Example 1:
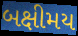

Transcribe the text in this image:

બક્ષીમય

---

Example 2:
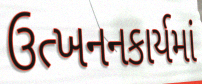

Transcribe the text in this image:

ઉત્ખનનકાર્યમાં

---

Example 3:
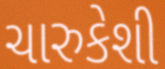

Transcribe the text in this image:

ચારુકેશી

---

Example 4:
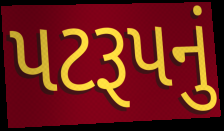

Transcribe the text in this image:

પટરૂપનું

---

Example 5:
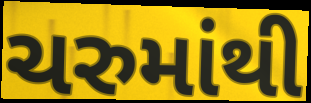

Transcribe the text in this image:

ચરુમાંથી